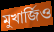
মুখার্জিও